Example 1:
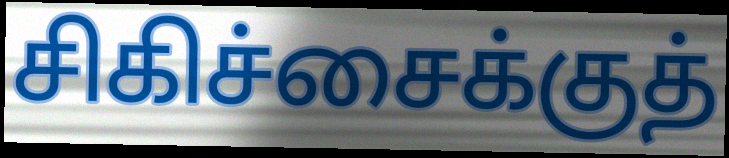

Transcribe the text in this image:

சிகிச்சைக்குத்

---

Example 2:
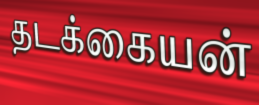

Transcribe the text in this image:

தடக்கையன்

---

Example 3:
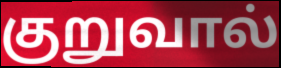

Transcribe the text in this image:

குறுவால்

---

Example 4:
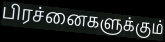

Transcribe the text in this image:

பிரச்னைகளுக்கும்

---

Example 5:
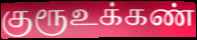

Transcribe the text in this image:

குரூஉக்கண்